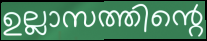
ഉല്ലാസത്തിന്റെ